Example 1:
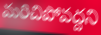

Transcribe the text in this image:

మరిచిపోవద్దని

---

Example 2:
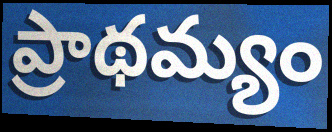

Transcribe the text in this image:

ప్రాథమ్యం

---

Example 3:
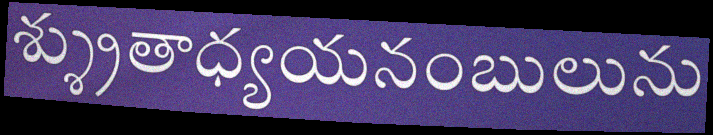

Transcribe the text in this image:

శ్శ్రుతాధ్యయనంబులును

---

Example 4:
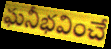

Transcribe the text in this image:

ఘనీభవించే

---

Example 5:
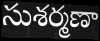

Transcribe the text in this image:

సుశర్మణా